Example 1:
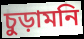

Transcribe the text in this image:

চুড়ামনি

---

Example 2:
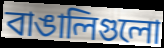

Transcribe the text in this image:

বাঙালিগুলো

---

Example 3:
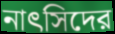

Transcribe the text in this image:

নাৎসিদের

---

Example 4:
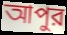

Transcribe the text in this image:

আপুর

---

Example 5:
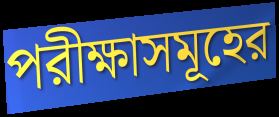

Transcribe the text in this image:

পরীক্ষাসমূহের